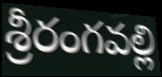
శ్రీరంగవల్లి